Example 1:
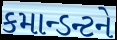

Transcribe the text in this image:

કમાન્ડન્ટને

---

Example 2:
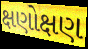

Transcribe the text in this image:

ક્ષણોક્ષણ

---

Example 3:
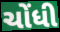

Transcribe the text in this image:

ચોંધી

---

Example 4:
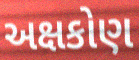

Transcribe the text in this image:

અક્ષકોણ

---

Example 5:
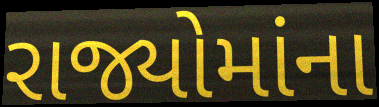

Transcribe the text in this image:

રાજ્યોમાંના